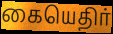
கையெதிர்